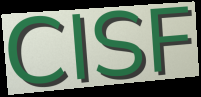
CISF